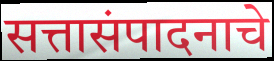
सत्तासंपादनाचे